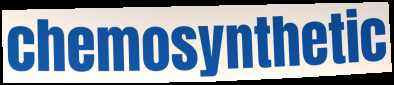
chemosynthetic